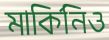
মার্কিনিও